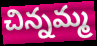
చిన్నమ్మ